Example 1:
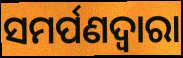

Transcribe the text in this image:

ସମର୍ପଣଦ୍ୱାରା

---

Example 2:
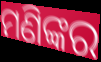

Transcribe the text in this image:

ମଣିଙ୍କର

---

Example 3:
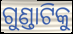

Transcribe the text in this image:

ଗୁଣ୍ଡାଟିକୁ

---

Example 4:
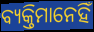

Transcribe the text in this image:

ବ୍ୟକ୍ତିମାନେହିଁ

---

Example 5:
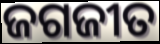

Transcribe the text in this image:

ଜଗଜୀତ